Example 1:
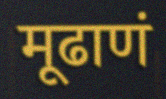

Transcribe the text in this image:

मूढाणं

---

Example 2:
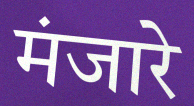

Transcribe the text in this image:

मंजारे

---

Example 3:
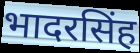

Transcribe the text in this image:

भादरसिंह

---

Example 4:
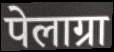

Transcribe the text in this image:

पेलाग्रा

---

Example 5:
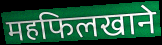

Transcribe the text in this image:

महफिलखाने